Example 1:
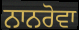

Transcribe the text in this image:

ਨਾਨਰੋਵਾ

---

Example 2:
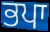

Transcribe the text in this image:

ਭਪਾ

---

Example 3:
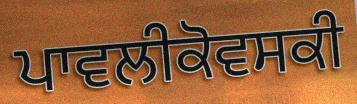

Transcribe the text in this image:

ਪਾਵਲੀਕੋਵਸਕੀ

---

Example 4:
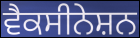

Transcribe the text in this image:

ਵੈਕਸੀਨੇਸ਼ਨ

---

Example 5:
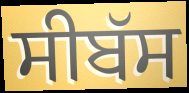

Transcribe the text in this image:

ਸੀਬੱਸ